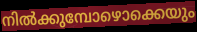
നിൽക്കുമ്പോഴൊക്കെയും